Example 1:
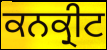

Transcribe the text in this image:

ਕਨਕ੍ਰੀਟ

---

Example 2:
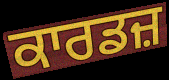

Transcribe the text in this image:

ਕਾਰਡਜ਼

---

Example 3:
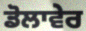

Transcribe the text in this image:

ਡੋਲਾਵੇਰ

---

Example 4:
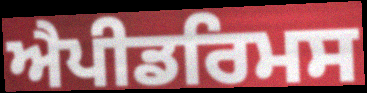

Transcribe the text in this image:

ਐਪੀਡਰਿਮਸ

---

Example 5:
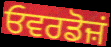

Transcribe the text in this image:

ਓਵਰਡੋਜ਼ਂ